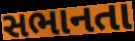
સભાનતા